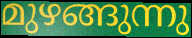
മുഴങ്ങുന്നു